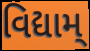
વિદ્યામ્